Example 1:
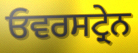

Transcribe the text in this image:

ਓਵਰਸਟ੍ਰੇਨ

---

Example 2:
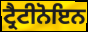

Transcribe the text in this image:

ਟ੍ਰੈਟੀਨੋਇਨ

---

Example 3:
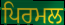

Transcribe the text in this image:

ਪਿਰਮਲ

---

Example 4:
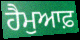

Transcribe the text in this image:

ਹੈਮੁਆਫ਼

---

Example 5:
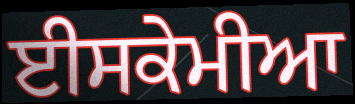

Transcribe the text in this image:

ਈਸਕੇਮੀਆ